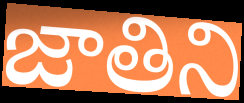
జాతిని